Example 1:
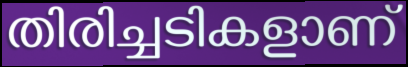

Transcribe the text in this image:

തിരിച്ചടികളാണ്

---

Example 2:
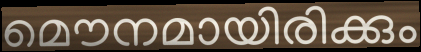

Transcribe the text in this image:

മൌനമായിരിക്കും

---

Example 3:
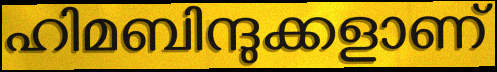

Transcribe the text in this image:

ഹിമബിന്ദുക്കളാണ്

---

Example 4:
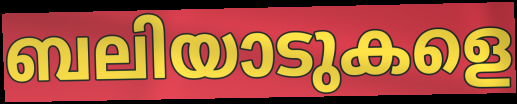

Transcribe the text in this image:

ബലിയാടുകളെ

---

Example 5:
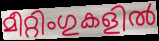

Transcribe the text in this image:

മീറ്റിംഗുകളിൽ